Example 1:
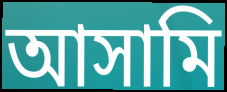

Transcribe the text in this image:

আসামি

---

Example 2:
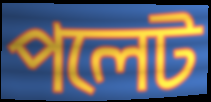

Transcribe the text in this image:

পলেট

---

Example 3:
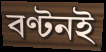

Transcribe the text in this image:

বণ্টনই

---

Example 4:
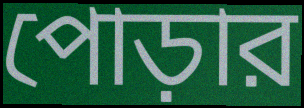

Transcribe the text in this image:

পোড়ার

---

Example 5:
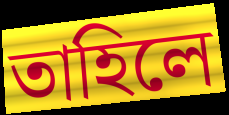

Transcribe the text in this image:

তাহিলে